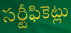
సర్టీఫికెట్లు